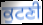
ਕੁਟਣੀ